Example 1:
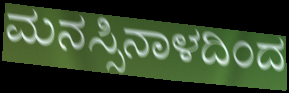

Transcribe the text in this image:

ಮನಸ್ಸಿನಾಳದಿಂದ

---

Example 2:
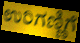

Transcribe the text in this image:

ಉರಿಗಣ್ಣಿಗೆ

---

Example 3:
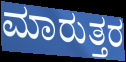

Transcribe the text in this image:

ಮಾರುತ್ತರ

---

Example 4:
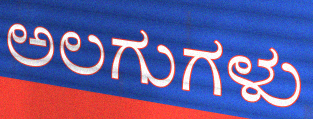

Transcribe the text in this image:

ಅಲಗುಗಳು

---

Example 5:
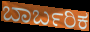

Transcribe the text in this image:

ಬಾರ್ಬರಿಕ